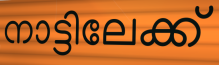
നാട്ടിലേക്ക്